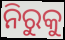
ନିରୁକୁ